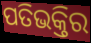
ପତିଭକ୍ତିର